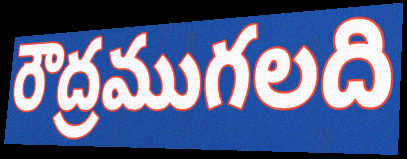
రౌద్రముగలది